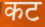
कट